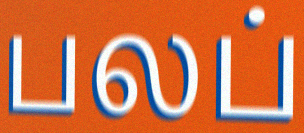
பலப்